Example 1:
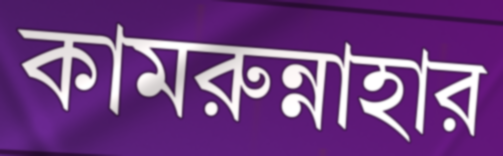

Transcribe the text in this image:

কামরুন্নাহার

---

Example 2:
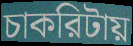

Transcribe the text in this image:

চাকরিটায়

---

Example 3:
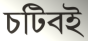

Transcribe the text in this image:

চটিবই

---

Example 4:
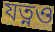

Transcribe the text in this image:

যত্নও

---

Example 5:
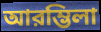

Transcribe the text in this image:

আরম্ভিলা